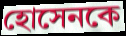
হোসেনকে